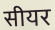
सीयर